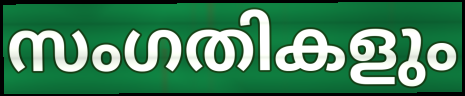
സംഗതികളും